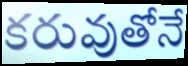
కరువుతోనే